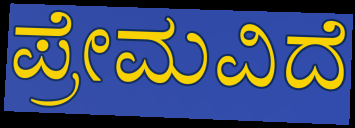
ಪ್ರೇಮವಿದೆ